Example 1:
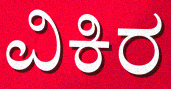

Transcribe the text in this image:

ವಿಕಿರ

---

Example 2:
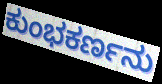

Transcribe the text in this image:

ಕುಂಭಕರ್ಣನು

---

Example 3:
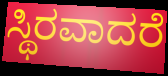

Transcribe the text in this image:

ಸ್ಥಿರವಾದರೆ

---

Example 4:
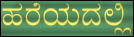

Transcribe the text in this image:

ಹರೆಯದಲ್ಲಿ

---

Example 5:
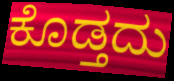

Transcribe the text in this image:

ಕೊಡ್ತದು